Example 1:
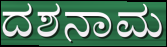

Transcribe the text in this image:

ದಶನಾಮ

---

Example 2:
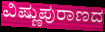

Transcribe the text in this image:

ವಿಷ್ಣುಪುರಾಣದ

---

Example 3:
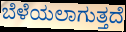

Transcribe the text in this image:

ಬೆಳೆಯಲಾಗುತ್ತದೆ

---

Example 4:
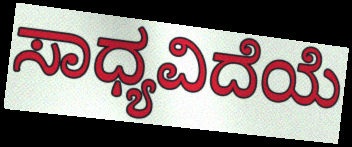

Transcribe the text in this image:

ಸಾಧ್ಯವಿದೆಯೆ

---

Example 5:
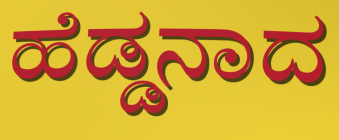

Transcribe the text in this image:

ಹೆಡ್ಡನಾದ